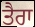
ਤੈਰਾ